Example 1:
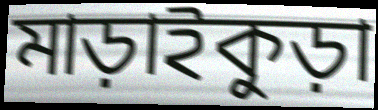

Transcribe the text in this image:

মাড়াইকুড়া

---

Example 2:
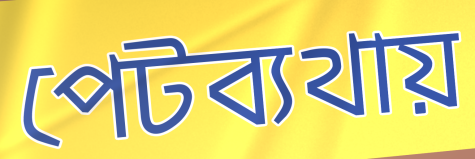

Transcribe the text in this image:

পেটব্যথায়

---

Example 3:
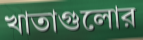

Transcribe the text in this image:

খাতাগুলোর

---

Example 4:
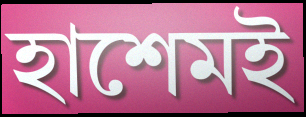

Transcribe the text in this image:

হাশেমই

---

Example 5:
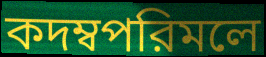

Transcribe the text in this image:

কদম্বপরিমলে